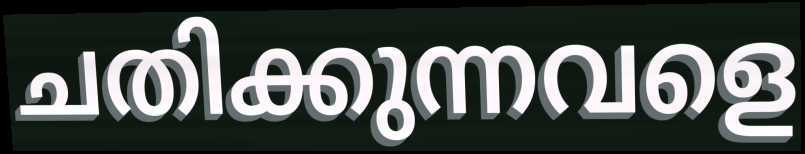
ചതിക്കുന്നവളെ